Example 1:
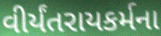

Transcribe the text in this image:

વીર્યંતરાયકર્મના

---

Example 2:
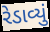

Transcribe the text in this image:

રેડાવ્યું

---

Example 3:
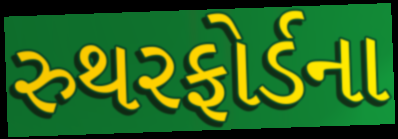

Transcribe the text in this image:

રુથરફોર્ડના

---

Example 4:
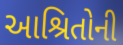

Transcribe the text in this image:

આશ્રિતોની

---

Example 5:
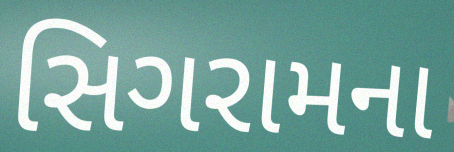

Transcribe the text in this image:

સિગરામના